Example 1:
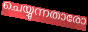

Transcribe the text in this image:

ചെയ്യുന്നതാരോ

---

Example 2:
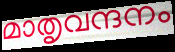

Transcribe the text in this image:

മാതൃവന്ദനം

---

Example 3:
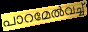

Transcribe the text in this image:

പാറമേൽവച്ച്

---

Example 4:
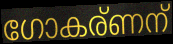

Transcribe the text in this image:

ഗോകര്ണന്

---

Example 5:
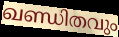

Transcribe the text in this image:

ഖണ്ഡിതവും